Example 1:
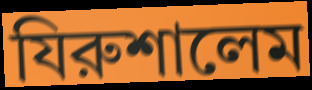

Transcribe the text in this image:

যিরুশালেম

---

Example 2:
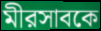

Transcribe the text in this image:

মীরসাবকে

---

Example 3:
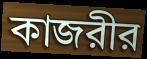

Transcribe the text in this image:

কাজরীর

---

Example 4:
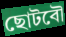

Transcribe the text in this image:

ছোটবৌ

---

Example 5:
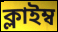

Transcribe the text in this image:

ক্লাইম্ব